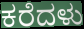
ಕರೆದಳು